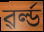
ৱৰ্ল্ড